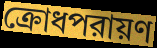
ক্রোধপরায়ণ